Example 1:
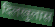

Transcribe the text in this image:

दिलखुलास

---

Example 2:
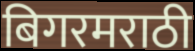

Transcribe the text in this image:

बिगरमराठी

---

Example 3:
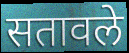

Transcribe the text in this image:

सतावले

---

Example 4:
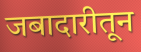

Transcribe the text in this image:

जबादारीतून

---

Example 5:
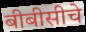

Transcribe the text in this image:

बीबीसीचे